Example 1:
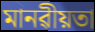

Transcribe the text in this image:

মানৱীয়তা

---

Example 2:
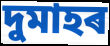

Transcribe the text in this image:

দুমাহৰ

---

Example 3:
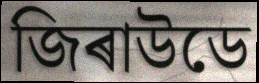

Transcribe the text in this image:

জিৰাউডে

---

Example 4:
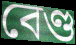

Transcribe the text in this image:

বেণ্ড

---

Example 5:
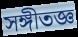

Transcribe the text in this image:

সঙ্গীতজ্ঞ